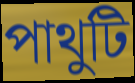
পাথুটি